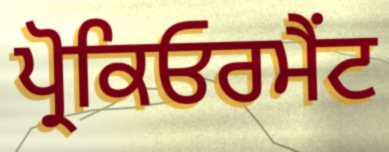
ਪ੍ਰੋਕਿਓਰਮੈਂਟ